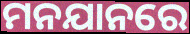
ମନଯାନରେ